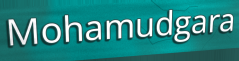
Mohamudgara